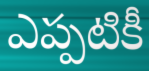
ఎప్పటికీ